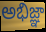
అభిజ్ఞా